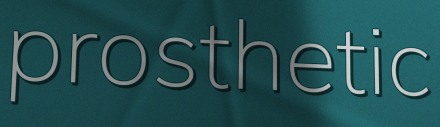
prosthetic